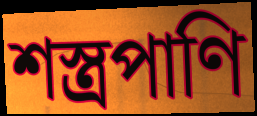
শস্ত্রপাণি